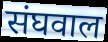
संघवाल